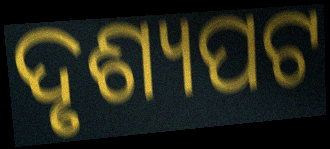
ଦୃଶ୍ୟପଟ